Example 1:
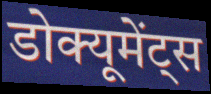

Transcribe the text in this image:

डोक्यूमेंट्स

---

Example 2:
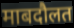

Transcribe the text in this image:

माबदौलत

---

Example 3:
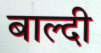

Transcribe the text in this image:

बाल्दी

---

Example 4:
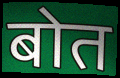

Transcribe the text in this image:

बोत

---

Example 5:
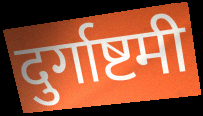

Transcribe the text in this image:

दुर्गाष्टमी